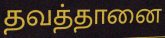
தவத்தானை